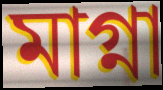
মাগ্না